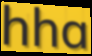
hha